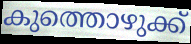
കുത്തൊഴുക്ക്